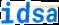
idsa